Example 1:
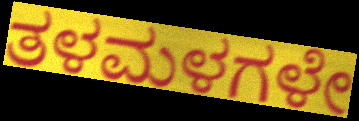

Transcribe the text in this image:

ತಳಮಳಗಳೇ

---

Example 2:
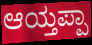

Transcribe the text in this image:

ಆಯ್ತಪ್ಪಾ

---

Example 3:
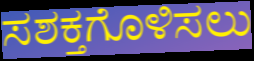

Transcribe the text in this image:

ಸಶಕ್ತಗೊಳಿಸಲು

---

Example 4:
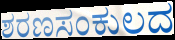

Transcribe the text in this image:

ಶರಣಸಂಕುಲದ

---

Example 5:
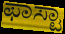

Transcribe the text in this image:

ಫಾಸ್ಟಾ